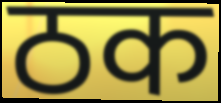
ठक